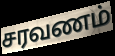
சரவணம்